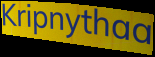
Kripnythaa